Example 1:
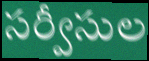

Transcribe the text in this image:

సర్వీసుల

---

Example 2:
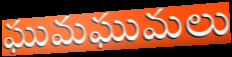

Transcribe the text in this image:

ఘుమఘుమలు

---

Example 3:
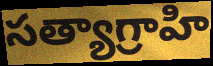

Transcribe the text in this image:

సత్యాగ్రాహి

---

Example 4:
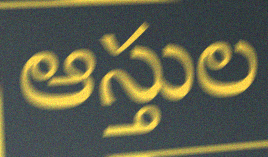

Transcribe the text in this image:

ఆస్తుల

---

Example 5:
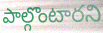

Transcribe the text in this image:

పాల్గొంటారని